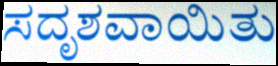
ಸದೃಶವಾಯಿತು